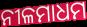
ନୀଳମାଧମ